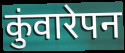
कुंवारेपन